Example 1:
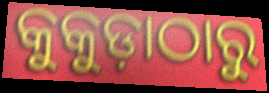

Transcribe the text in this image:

କୁକୁଡ଼ାଠାରୁ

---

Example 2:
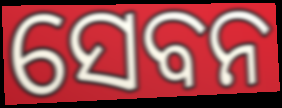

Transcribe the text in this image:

ସେବନ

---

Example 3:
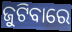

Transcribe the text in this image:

ଜୁଟିବାରେ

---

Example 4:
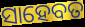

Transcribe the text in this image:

ସାହେବତ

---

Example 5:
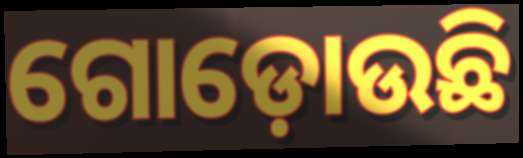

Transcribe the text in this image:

ଗୋଡ଼ୋଉଛି